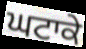
ਘਟਾਕੇ